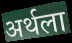
अर्थला